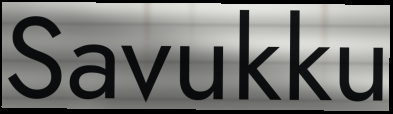
Savukku